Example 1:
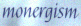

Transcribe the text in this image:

monergism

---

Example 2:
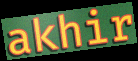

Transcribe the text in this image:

akhir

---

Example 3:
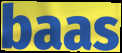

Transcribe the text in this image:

baas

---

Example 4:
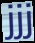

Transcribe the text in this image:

jjj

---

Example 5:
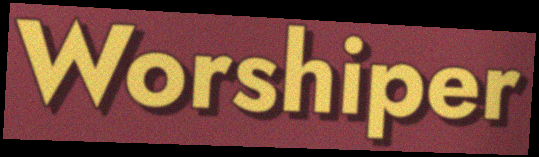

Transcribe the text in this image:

Worshiper